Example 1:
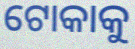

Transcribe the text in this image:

ଟୋକାକୁ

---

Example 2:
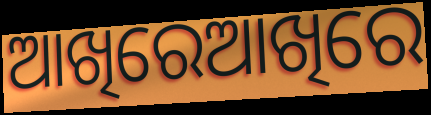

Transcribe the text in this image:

ଆଖିରେଆଖିରେ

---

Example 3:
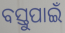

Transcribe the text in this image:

ବସ୍ତୁପାଇଁ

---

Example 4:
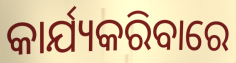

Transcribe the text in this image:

କାର୍ଯ୍ୟକରିବାରେ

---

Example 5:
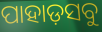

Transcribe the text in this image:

ପାହାଡ଼ସବୁ